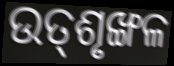
ଉତ୍‌ଶୃଙ୍ଖଳ